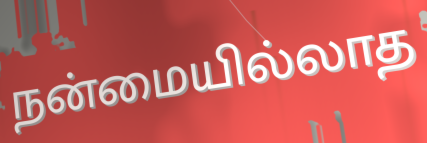
நன்மையில்லாத